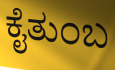
ಕೈತುಂಬ